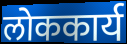
लोककार्य